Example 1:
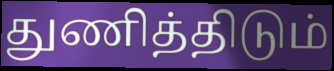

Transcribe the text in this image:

துணித்திடும்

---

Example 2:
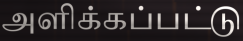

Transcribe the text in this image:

அளிக்கப்பட்டு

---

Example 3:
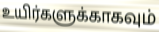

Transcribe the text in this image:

உயிர்களுக்காகவும்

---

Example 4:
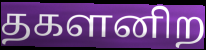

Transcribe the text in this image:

தகளனிற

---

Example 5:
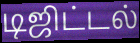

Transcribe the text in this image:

டிஜிட்டல்